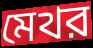
মেথর